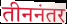
तीननंतर